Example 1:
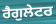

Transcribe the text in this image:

ਰੈਗੁਲੇਟਰ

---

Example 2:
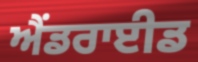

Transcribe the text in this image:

ਐਂਡਰਾਈਡ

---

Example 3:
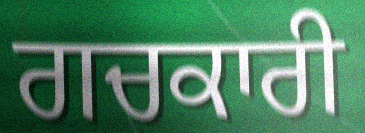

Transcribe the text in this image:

ਗਚਕਾਰੀ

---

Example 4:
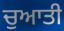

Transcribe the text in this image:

ਚੁਆਤੀ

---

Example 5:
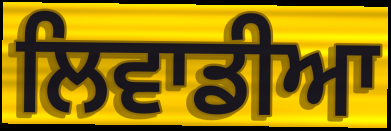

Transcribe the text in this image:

ਲਿਵਾਡੀਆ